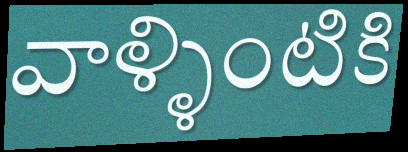
వాళ్ళింటికి